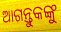
ଆଗନ୍ତୁକଙ୍କୁ